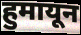
हुमायून